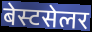
बेस्टसेलर